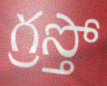
గ్రస్తో